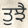
ਤੁਝੈ